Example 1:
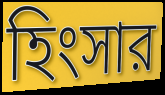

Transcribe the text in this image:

হিংসার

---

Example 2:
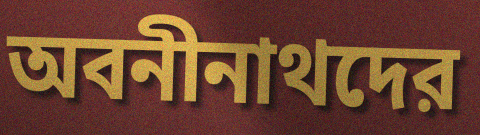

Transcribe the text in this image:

অবনীনাথদের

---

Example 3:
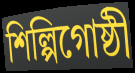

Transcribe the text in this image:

শিল্পিগোষ্ঠী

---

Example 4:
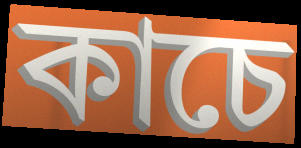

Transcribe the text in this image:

কাচে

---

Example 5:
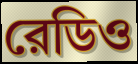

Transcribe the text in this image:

রেডিও